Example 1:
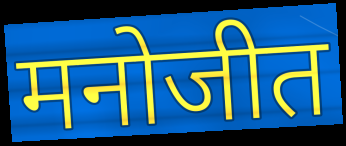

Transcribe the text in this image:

मनोजीत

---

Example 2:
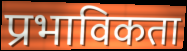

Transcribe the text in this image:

प्रभाविकता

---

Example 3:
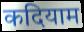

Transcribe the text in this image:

कदियाम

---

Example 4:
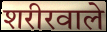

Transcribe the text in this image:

शरीरवाले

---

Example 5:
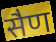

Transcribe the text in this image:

सैण